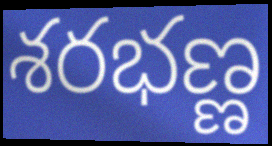
శరభణ్ణ